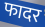
फादर